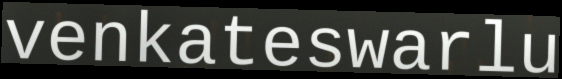
venkateswarlu